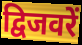
द्विजवरें